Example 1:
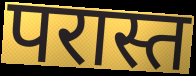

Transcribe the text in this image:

परास्त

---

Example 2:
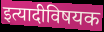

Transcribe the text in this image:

इत्यादीविषयक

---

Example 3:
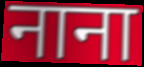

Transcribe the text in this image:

नाना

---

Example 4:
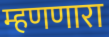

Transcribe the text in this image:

म्हणणारा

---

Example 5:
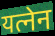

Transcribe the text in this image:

यत्नेन